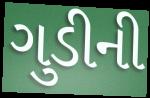
ગુડીની